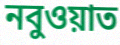
নবুওয়াত